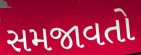
સમજાવતો